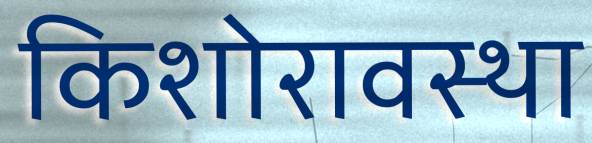
किशोरावस्था